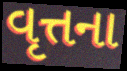
વૃત્તના